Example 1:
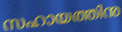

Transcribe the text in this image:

സഹായത്തിനു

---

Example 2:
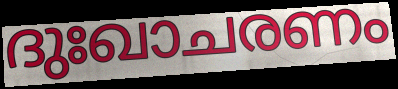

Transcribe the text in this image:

ദുഃഖാചരണം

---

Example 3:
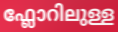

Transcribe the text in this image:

ഫ്ലോറിലുള്ള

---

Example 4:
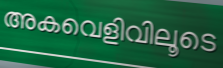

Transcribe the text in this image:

അകവെളിവിലൂടെ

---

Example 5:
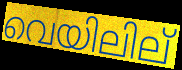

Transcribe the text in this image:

വെയിലില്